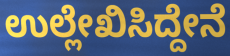
ಉಲ್ಲೇಖಿಸಿದ್ದೇನೆ